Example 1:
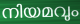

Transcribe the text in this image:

നിയമവും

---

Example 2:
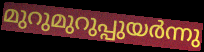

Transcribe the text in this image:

മുറുമുറുപ്പുയർന്നു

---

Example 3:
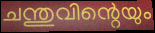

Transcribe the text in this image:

ചന്തുവിന്റെയും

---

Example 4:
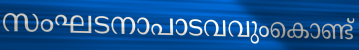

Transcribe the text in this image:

സംഘടനാപാടവവുംകൊണ്ട്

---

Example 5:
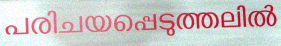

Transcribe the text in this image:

പരിചയപ്പെടുത്തലിൽ